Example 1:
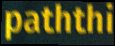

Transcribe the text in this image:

paththi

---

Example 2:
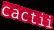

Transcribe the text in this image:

cactii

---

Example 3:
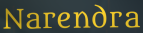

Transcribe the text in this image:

Narendra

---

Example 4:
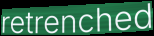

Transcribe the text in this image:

retrenched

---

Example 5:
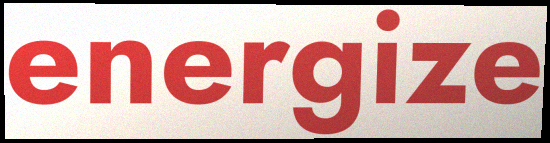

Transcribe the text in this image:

energize